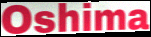
Oshima